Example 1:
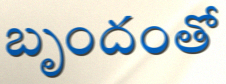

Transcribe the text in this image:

బృందంతో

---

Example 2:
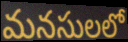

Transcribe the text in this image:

మనసులలో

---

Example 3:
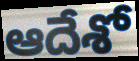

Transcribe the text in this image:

ఆదేశో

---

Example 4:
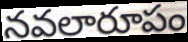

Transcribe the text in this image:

నవలారూపం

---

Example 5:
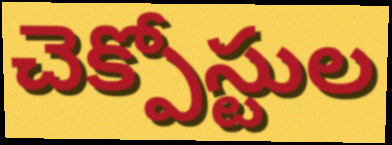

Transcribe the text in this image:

చెక్పోస్టుల